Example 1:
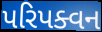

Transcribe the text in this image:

પરિપક્વન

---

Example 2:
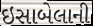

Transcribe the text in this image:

ઇસાબેલાની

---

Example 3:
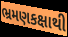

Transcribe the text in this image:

ભ્રમણકક્ષાથી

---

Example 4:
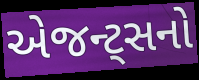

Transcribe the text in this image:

એજન્ટ્સનો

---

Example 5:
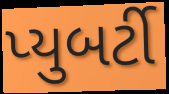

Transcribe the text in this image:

પ્યુબર્ટી